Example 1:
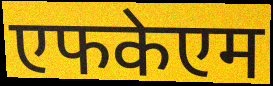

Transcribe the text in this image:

एफकेएम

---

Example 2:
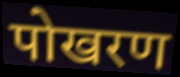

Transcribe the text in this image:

पोखरण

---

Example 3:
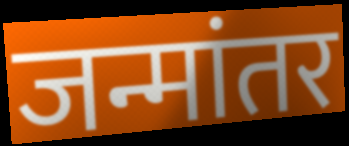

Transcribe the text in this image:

जन्मांतर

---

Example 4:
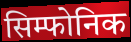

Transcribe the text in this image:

सिम्फोनिक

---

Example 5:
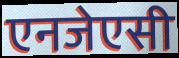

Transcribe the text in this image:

एनजेएसी